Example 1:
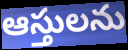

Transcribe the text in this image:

ఆస్తులను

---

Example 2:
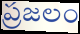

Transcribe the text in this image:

ప్రజలం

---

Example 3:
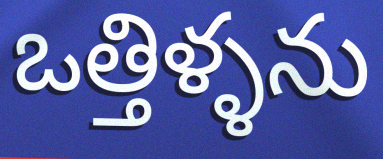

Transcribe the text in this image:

ఒత్తిళ్ళను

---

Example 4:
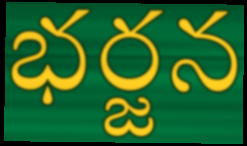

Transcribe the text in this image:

భర్జన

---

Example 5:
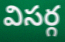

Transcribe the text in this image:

విసర్గ